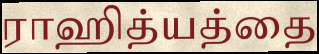
ராஹித்யத்தை